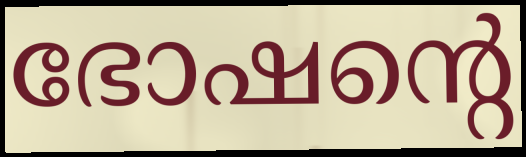
ഭോഷന്റെ